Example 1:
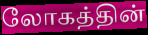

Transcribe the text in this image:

லோகத்தின்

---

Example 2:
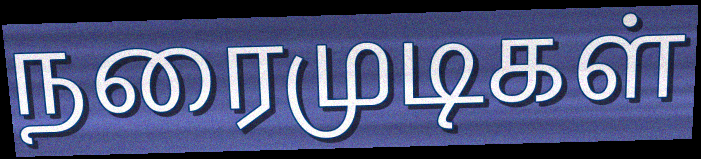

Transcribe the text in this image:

நரைமுடிகள்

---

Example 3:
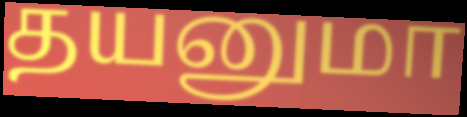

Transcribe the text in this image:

தயனுமா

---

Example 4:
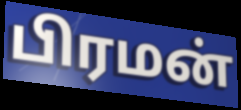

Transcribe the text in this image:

பிரமன்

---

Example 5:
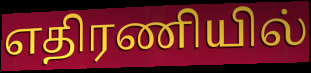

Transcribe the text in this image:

எதிரணியில்